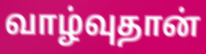
வாழ்வுதான்